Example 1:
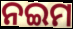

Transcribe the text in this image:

ନଇମ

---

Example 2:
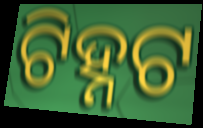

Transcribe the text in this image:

ଟିହ୍ନଟ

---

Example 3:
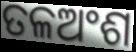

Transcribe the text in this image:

ତଳଅଂଶ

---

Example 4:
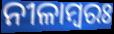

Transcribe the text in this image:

ନୀଳାମ୍ବରଃ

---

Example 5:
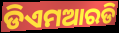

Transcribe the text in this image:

ଡିଏମଆରଡି